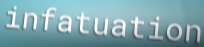
infatuation